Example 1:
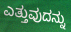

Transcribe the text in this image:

ಎತ್ತುವುದನ್ನು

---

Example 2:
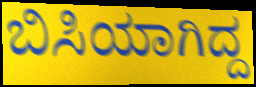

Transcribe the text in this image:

ಬಿಸಿಯಾಗಿದ್ದ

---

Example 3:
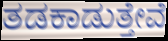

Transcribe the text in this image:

ತಡಕಾಡುತ್ತೇವೆ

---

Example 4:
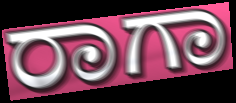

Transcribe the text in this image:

ರಾಗಾ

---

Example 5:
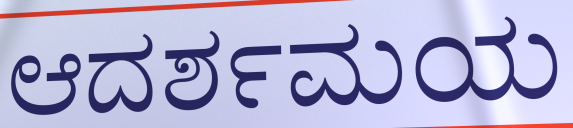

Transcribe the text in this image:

ಆದರ್ಶಮಯ